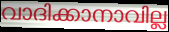
വാദിക്കാനാവില്ല